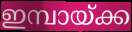
ഇമ്പായ്ക്ക